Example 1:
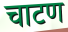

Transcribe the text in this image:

चाटण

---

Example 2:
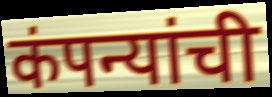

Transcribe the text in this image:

कंपन्यांची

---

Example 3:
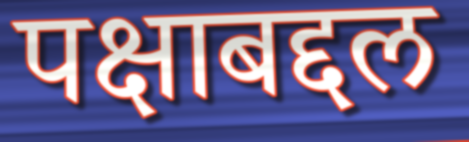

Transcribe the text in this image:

पक्षाबद्दल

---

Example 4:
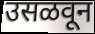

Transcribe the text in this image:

उसळवून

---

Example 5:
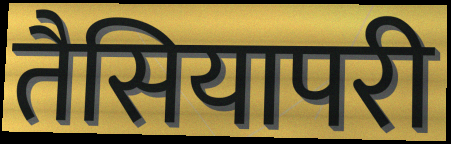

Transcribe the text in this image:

तैसियापरी